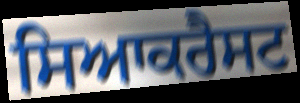
ਸਿਆਕਰੈਸਟ